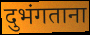
दुभंगताना